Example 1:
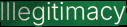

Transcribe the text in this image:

Illegitimacy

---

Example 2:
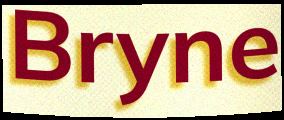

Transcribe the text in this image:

Bryne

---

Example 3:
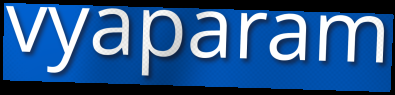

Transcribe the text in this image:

vyaparam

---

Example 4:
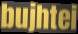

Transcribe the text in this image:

bujhtei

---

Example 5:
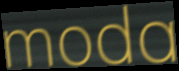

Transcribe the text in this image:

moda